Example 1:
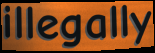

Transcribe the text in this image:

illegally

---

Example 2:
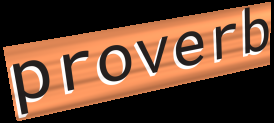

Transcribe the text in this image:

proverb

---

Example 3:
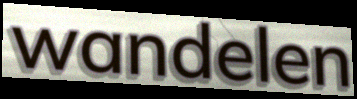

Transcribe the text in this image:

wandelen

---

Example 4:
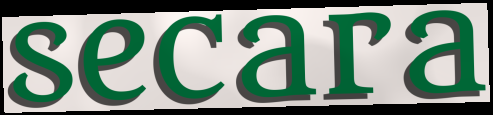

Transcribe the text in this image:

secara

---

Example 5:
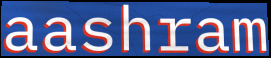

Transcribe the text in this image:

aashram